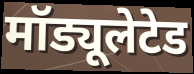
मॉड्यूलेटेड